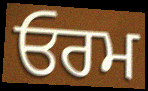
ਓਰਮ